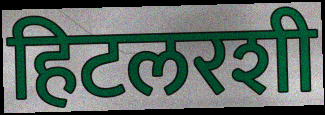
हिटलरशी